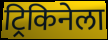
ट्रिकिनेला